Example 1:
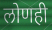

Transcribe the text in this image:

लोणही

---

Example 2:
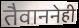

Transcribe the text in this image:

तैवाननेही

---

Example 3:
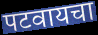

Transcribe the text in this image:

पटवायचा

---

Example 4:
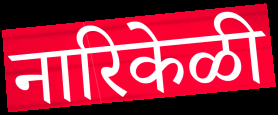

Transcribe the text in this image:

नारिकेळी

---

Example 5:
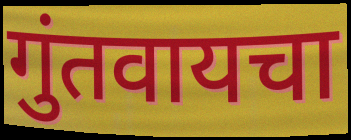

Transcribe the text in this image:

गुंतवायचा